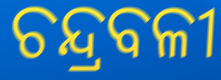
ଚନ୍ଦ୍ରବଳୀ